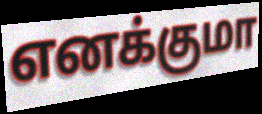
எனக்குமா